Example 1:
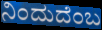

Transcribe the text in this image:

ನಿಂದುದೆಂಬ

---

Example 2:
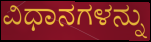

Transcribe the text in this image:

ವಿಧಾನಗಳನ್ನು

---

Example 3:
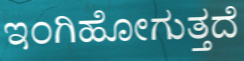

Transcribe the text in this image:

ಇಂಗಿಹೋಗುತ್ತದೆ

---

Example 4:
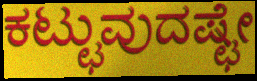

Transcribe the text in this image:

ಕಟ್ಟುವುದಷ್ಟೇ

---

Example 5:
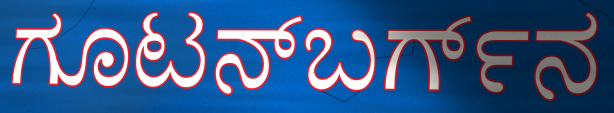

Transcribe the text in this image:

ಗೂಟನ್‌ಬರ್ಗ್‌ನ